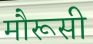
मौरूसी